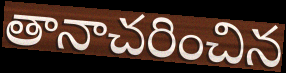
తానాచరించిన